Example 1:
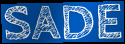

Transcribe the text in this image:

SADE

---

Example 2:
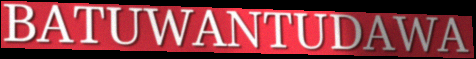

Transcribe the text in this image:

BATUWANTUDAWA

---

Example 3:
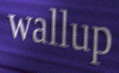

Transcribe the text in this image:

wallup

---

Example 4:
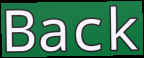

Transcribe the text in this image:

Back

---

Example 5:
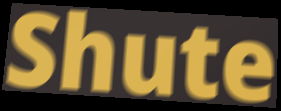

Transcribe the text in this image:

Shute